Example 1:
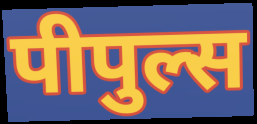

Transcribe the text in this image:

पीपुल्स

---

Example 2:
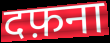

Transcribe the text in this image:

दफ़ना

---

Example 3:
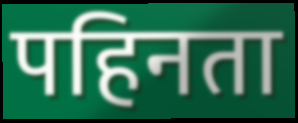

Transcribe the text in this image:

पहिनता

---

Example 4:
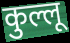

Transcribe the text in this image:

कुल्लू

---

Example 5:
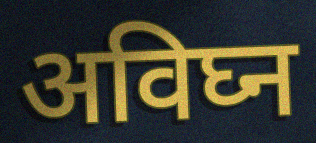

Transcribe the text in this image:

अविघ्न